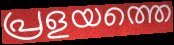
പ്രളയത്തെ